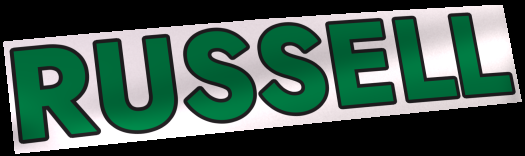
RUSSELL